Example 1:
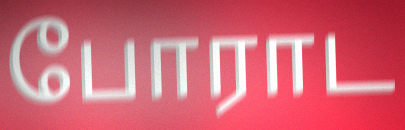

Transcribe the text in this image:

போராட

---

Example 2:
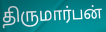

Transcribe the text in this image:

திருமார்பன்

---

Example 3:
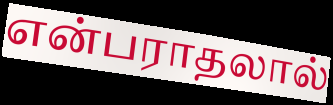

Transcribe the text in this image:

என்பராதலால்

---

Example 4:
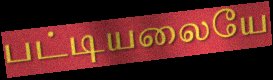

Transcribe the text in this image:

பட்டியலையே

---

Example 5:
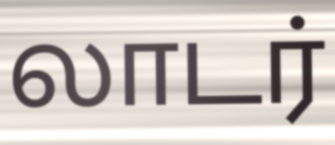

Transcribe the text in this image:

லாடர்